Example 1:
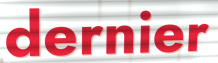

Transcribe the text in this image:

dernier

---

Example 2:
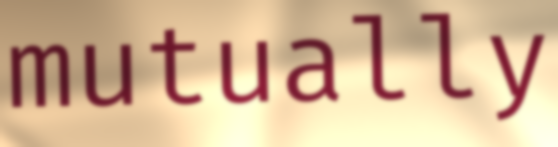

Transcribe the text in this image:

mutually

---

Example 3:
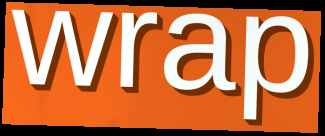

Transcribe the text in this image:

wrap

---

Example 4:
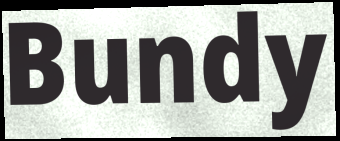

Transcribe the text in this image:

Bundy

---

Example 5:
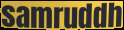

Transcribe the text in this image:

samruddh